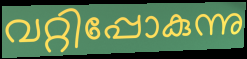
വറ്റിപ്പോകുന്നു